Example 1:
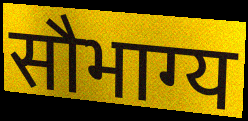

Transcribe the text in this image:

सौभाग्य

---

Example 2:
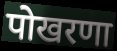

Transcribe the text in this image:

पोखरणा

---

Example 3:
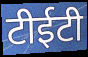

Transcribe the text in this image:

टीईटी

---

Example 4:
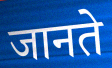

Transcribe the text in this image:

जानते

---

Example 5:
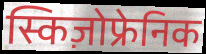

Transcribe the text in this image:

स्किज़ोफ्रेनिक